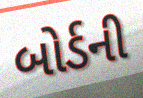
બોર્ડની